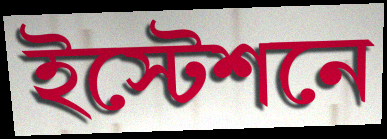
ইস্টেশনে